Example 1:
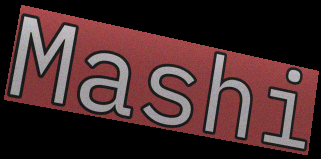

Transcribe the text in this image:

Mashi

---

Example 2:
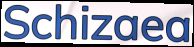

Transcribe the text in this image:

Schizaea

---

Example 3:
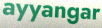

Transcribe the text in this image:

ayyangar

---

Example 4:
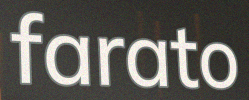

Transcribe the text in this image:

farato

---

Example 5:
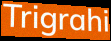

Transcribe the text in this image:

Trigrahi